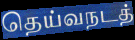
தெய்வநடத்